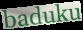
baduku